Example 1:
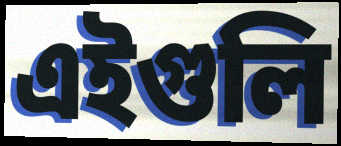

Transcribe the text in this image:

এইগুলি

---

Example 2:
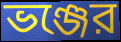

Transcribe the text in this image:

ভঞ্জের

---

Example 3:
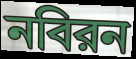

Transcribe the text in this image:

নবিরন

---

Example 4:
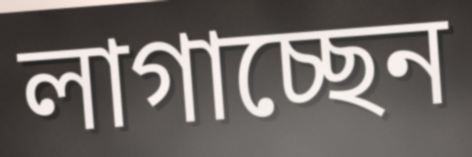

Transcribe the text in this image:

লাগাচ্ছেন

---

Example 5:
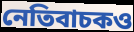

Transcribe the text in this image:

নেতিবাচকও